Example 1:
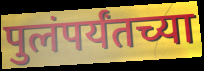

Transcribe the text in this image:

पुलंपर्यंतच्या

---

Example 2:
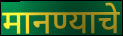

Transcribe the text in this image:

मानण्याचे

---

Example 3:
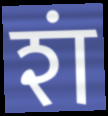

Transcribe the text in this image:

शं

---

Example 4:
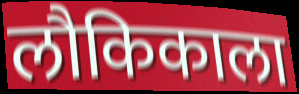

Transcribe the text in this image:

लौकिकाला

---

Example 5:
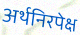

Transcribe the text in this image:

अर्थनिरपेक्ष